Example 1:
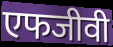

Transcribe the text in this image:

एफजीवी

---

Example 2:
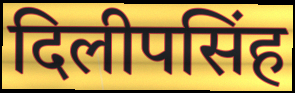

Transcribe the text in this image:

दिलीपसिंह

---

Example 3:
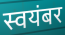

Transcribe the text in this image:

स्वयंबर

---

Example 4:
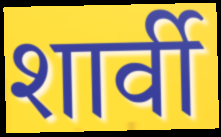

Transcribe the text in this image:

शार्वी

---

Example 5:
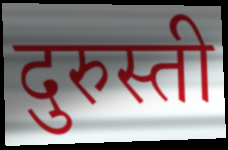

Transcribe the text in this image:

दुरुस्ती